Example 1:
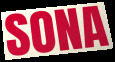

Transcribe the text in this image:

SONA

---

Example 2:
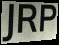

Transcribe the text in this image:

JRP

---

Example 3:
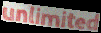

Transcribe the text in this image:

unlimited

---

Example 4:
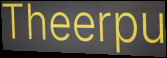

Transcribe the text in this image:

Theerpu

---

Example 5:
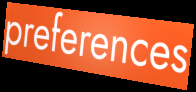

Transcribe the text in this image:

preferences